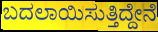
ಬದಲಾಯಿಸುತ್ತಿದ್ದೇನೆ